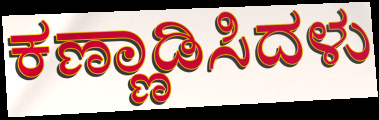
ಕಣ್ಣಾಡಿಸಿದಳು